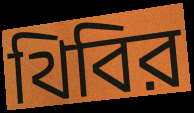
থিবির